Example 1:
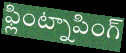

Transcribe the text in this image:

ఫ్లింట్నాపింగ్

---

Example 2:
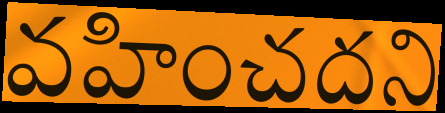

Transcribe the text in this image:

వహించదని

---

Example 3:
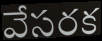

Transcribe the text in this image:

వేసరక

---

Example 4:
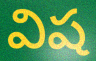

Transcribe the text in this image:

విష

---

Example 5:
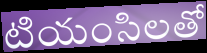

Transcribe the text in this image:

టియంసిలతో